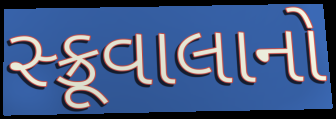
સ્ક્રૂવાલાનો